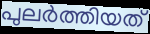
പുലർത്തിയത്